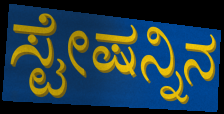
ಸ್ಟೇಷನ್ನಿನ